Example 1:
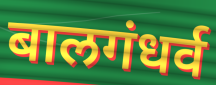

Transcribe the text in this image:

बालगंधर्व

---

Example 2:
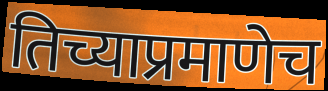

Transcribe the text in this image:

तिच्याप्रमाणेच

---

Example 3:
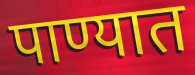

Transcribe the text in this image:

पाण्यात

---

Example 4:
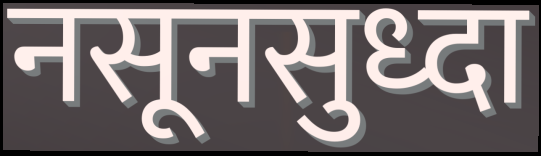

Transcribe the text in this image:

नसूनसुध्दा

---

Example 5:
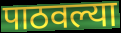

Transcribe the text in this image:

पाठवल्या